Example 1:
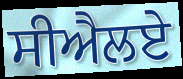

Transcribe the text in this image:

ਸੀਐਲਏ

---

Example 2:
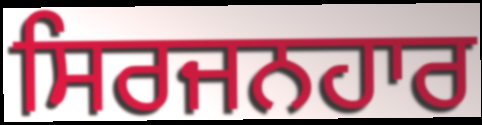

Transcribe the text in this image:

ਸਿਰਜਨਹਾਰ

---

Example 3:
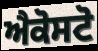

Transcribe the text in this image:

ਐਕੋਸਟੋ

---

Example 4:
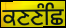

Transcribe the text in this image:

ਕਣਣੰਛਿ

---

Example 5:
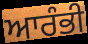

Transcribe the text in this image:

ਆਰੰਭੀ